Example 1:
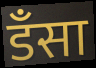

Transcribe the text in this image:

डँसा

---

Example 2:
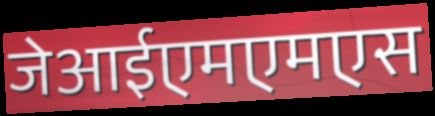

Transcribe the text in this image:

जेआईएमएमएस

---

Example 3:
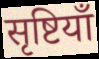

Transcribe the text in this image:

सृष्टियाँ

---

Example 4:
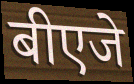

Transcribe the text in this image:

बीएजे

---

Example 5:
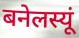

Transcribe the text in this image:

बनेलस्यूं